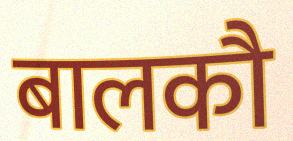
बालकौ